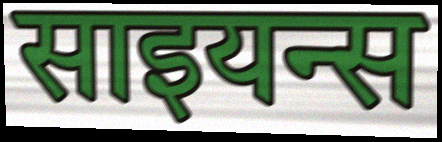
साइयन्स